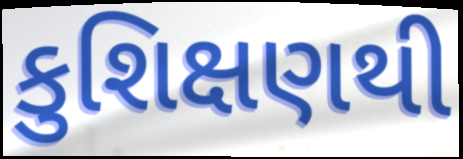
કુશિક્ષણથી